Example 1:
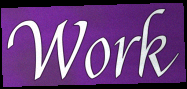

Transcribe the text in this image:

Work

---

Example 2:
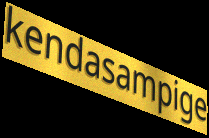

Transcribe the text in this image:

kendasampige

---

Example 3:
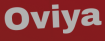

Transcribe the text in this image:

Oviya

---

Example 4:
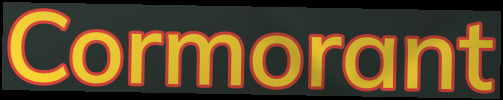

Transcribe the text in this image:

Cormorant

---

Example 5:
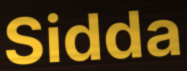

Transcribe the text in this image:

Sidda